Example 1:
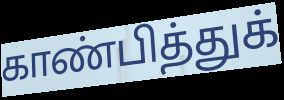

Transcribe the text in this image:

காண்பித்துக்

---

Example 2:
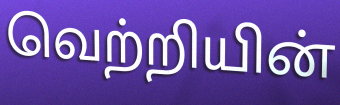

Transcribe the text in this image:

வெற்றியின்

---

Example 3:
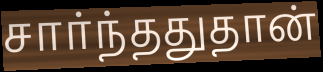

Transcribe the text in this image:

சார்ந்ததுதான்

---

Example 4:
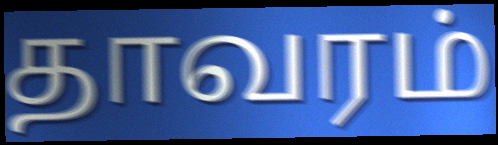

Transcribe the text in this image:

தாவரம்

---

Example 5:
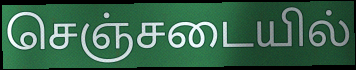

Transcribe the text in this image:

செஞ்சடையில்